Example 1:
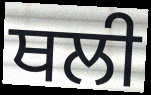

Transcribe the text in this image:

ਥਲੀ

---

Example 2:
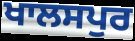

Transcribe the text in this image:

ਖਾਲਸਪੁਰ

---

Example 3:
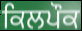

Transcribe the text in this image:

ਕਿਲਪੌਕ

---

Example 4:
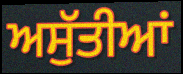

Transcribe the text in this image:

ਅਸੁੱਤੀਆਂ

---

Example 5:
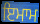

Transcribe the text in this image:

ਇਮਾਮ